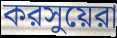
করসুয়েরা